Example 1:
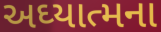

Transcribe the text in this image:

અઘ્યાત્મના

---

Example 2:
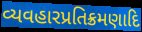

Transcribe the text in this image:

વ્યવહારપ્રતિક્રમણાદિ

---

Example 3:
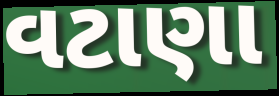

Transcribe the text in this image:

વટાણા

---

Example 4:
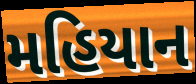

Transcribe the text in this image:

મહિયાન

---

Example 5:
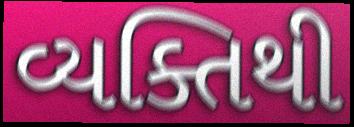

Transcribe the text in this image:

વ્યક્તિથી